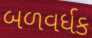
બળવર્ધક